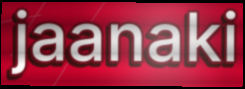
jaanaki